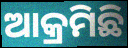
ଆକ୍ରମିଛି